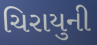
ચિરાયુની